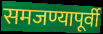
समजण्यापूर्वी